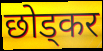
छोड्कर